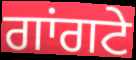
ਗਾਂਗਟੇ